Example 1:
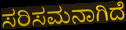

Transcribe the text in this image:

ಸರಿಸಮನಾಗಿದೆ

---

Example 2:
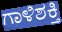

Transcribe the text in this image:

ಗಾಳಿಶಕ್ತಿ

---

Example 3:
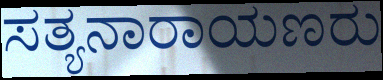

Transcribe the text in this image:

ಸತ್ಯನಾರಾಯಣರು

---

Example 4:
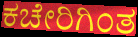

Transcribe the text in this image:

ಕಚೇರಿಗಿಂತ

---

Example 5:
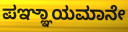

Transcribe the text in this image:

ಪಞ್ಞಾಯಮಾನೇ